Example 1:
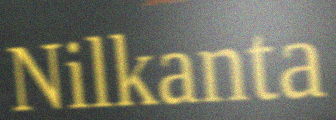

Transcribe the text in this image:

Nilkanta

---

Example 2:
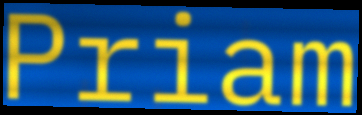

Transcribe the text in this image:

Priam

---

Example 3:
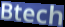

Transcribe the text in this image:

Btech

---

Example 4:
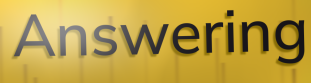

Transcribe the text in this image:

Answering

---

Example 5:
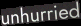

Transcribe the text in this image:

unhurried